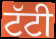
ਟੱਟੀ